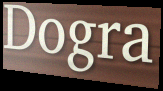
Dogra